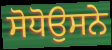
ਸੋਧੋਉਸਨੇ